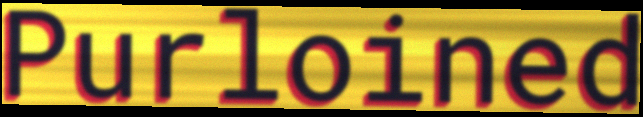
Purloined